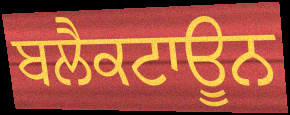
ਬਲੈਕਟਾਊਨ